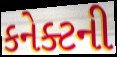
કનેક્ટની